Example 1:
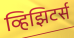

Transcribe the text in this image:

व्हिझिटर्स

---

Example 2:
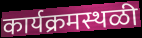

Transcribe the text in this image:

कार्यक्रमस्थळी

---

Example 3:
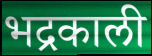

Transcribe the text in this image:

भद्रकाली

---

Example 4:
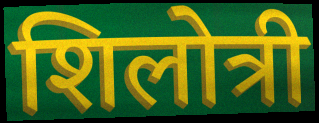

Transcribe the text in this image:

शिलोत्री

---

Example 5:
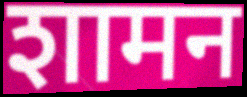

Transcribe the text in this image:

शामन